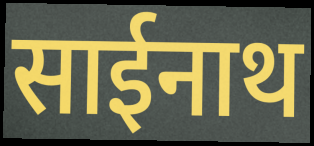
साईनाथ